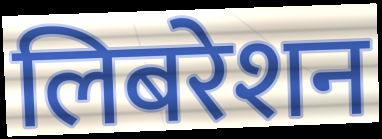
लिबरेशन